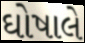
ઘોષાલે